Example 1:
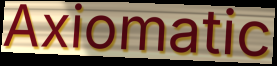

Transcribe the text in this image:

Axiomatic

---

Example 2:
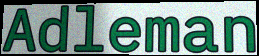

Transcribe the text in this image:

Adleman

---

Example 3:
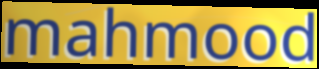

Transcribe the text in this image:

mahmood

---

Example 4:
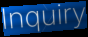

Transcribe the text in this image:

Inquiry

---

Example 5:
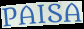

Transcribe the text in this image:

PAISA